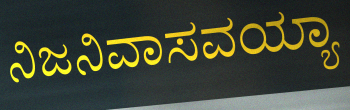
ನಿಜನಿವಾಸವಯ್ಯಾ